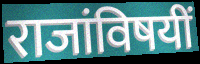
राजांविषयीं